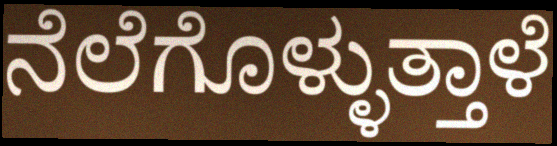
ನೆಲೆಗೊಳ್ಳುತ್ತಾಳೆ